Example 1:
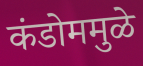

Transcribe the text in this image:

कंडोममुळे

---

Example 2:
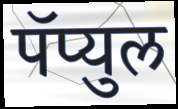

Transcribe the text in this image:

पॅप्युल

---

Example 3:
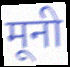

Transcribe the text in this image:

मूनी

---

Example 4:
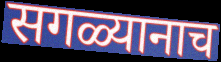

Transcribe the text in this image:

सगळ्यानाच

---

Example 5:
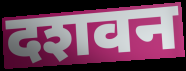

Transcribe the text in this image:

दशवन